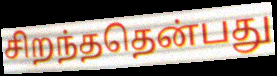
சிறந்ததென்பது